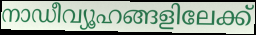
നാഡീവ്യൂഹങ്ങളിലേക്ക്